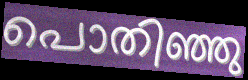
പൊതിഞ്ഞു